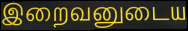
இறைவனுடைய